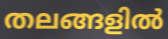
തലങ്ങളിൽ